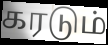
கரடும்